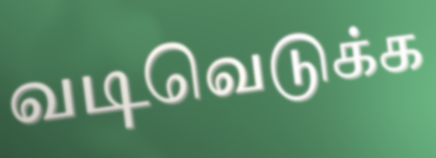
வடிவெடுக்க